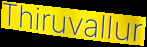
Thiruvallur